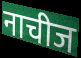
नाचीज